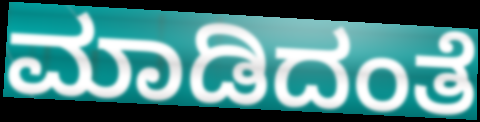
ಮಾಡಿದಂತೆ